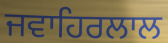
ਜਵਾਹਿਰਲਾਲ